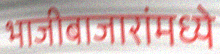
भाजीबाजारांमध्ये